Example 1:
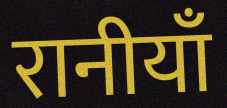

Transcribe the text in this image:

रानीयाँ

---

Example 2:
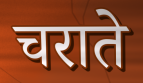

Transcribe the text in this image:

चराते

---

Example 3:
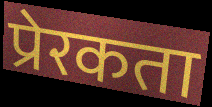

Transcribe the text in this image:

प्रेरकता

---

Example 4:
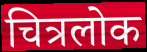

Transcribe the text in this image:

चित्रलोक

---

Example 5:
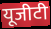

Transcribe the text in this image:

यूजीटी